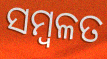
ସମ୍ବଳତ